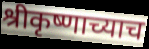
श्रीकृष्णाच्याच